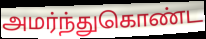
அமர்ந்துகொண்ட